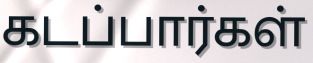
கடப்பார்கள்